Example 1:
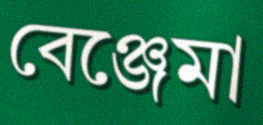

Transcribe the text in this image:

বেঞ্জেমা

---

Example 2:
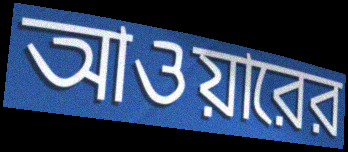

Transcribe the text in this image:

আওয়ারের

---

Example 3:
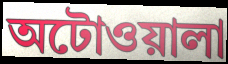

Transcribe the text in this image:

অটোওয়ালা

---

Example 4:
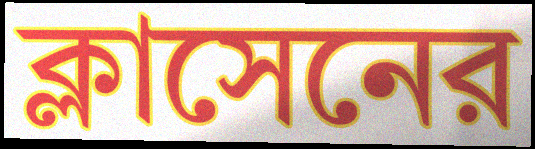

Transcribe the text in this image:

ক্লাসেনের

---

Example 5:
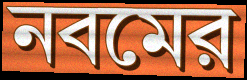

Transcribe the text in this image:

নবমের